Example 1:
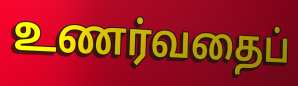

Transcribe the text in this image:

உணர்வதைப்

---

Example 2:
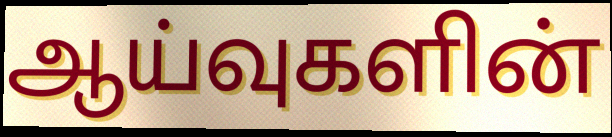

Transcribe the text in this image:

ஆய்வுகளின்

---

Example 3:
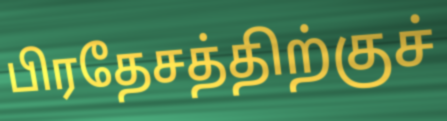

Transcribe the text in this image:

பிரதேசத்திற்குச்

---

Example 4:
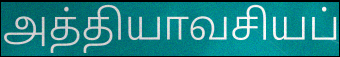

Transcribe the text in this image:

அத்தியாவசியப்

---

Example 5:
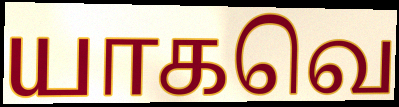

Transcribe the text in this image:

யாகவெ